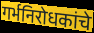
गर्भनिरोधकांचे